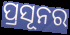
ପ୍ରସୂନର